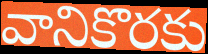
వానికొరకు